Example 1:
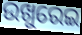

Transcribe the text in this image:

ଉଖୁରେଇ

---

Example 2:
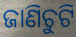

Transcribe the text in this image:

ଜାଣିଚୁଟି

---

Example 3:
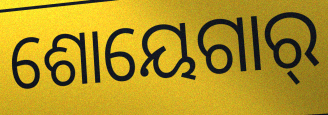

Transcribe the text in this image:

ଶୋୟେଗାର୍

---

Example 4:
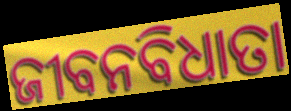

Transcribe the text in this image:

ଜୀବନବିଧାତା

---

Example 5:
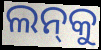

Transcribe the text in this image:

ଲନ୍‌କୁ